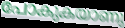
പോകുകയാണു